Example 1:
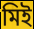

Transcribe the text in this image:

মিই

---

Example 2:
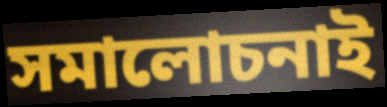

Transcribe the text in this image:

সমালোচনাই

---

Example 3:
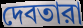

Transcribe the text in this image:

দেবতারা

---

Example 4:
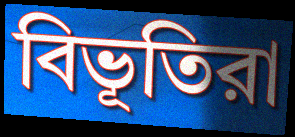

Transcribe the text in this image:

বিভূতিরা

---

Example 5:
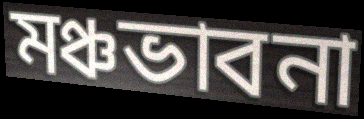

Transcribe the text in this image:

মঞ্চভাবনা